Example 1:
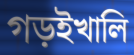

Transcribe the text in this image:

গড়ইখালি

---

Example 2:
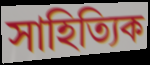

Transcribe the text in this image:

সাহিত্যিক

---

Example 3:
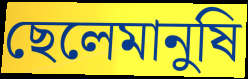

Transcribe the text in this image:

ছেলেমানুষি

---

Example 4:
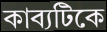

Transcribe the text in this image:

কাব্যটিকে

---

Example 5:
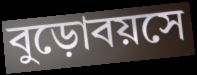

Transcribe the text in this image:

বুড়োবয়সে